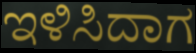
ಇಳಿಸಿದಾಗ